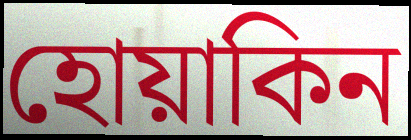
হোয়াকিন